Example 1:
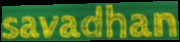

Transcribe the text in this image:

savadhan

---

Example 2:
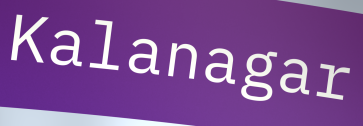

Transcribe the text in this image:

Kalanagar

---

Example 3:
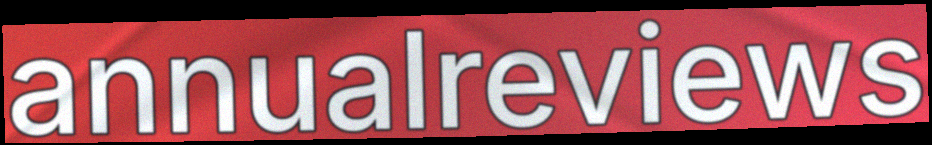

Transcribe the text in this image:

annualreviews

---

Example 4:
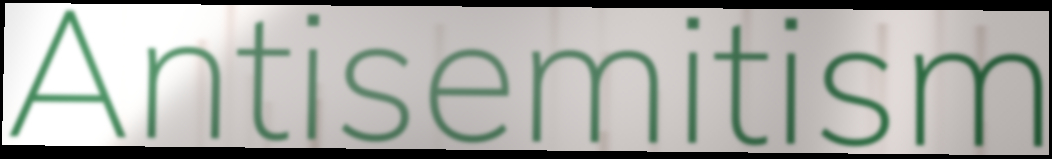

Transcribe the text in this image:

Antisemitism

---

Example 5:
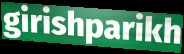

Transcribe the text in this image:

girishparikh